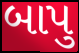
બાપુ